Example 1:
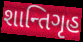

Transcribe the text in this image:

શાન્તિગૃહ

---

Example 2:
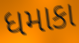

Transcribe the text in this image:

ધમાકા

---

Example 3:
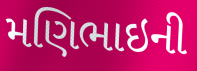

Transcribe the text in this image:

મણિભાઇની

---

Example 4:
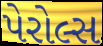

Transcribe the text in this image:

પેરોલ્સ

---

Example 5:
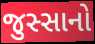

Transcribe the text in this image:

જુસ્સાનો